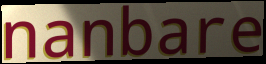
nanbare